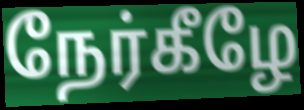
நேர்கீழே